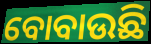
ବୋବାଉଛି